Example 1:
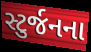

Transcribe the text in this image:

સ્ટુર્જનના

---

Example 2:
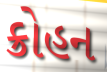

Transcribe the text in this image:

ક્રોહન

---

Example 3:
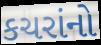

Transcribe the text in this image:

કચરાંનો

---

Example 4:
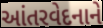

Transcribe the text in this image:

આંતરવેદનાને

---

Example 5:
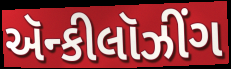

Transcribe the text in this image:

ઍન્કીલૉઝીંગ